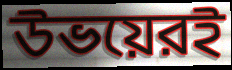
উভয়েরই